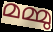
മമ്മു